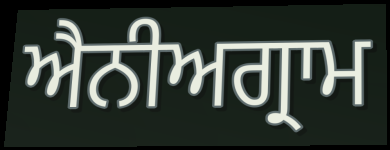
ਐਨੀਅਗ੍ਰਾਮ